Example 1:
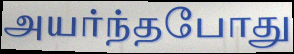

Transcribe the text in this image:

அயர்ந்தபோது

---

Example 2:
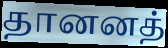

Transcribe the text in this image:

தானனத்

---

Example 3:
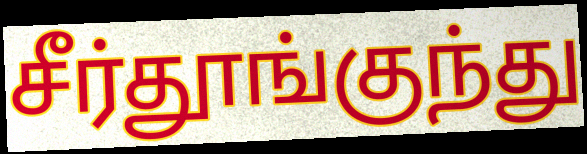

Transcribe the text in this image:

சீர்தூங்குந்து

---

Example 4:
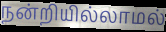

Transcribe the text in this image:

நன்றியில்லாமல்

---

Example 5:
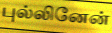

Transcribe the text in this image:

புல்லினேன்